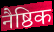
नैष्ठिक